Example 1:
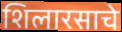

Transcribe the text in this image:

शिलारसाचे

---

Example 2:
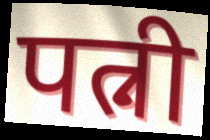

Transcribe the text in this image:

पत्नी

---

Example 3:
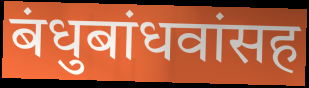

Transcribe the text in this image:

बंधुबांधवांसह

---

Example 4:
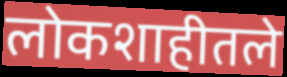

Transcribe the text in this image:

लोकशाहीतले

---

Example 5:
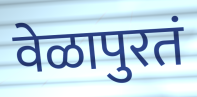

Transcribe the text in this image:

वेळापुरतं